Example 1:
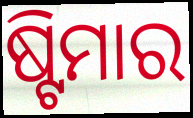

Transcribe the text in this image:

ଷ୍ଟିମାର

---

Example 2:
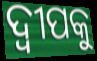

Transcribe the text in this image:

ଦ୍ୱୀପକୁ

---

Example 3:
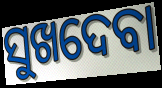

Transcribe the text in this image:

ସୁଖଦେବା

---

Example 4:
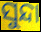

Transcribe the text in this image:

ସୁନ୍ଦା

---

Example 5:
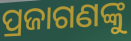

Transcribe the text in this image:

ପ୍ରଜାଗଣଙ୍କୁ